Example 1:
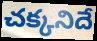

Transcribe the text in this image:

చక్కనిదే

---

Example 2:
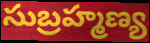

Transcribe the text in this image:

సుబ్రహ్మణ్య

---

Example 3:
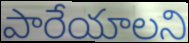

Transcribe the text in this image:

పారేయాలని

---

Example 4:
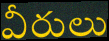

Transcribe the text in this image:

వీరులు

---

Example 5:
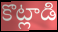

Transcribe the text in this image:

కొట్లాడి